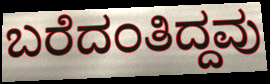
ಬರೆದಂತಿದ್ದವು